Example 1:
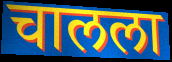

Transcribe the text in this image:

चालला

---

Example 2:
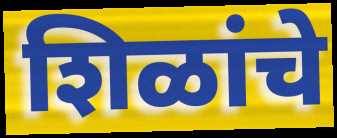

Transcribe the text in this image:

शिळांचे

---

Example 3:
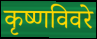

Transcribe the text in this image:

कृष्णविवरे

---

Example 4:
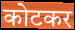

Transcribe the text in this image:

कोटकर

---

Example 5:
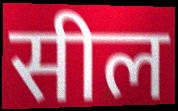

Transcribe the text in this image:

सील